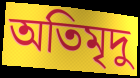
অতিমৃদু